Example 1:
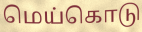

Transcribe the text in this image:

மெய்கொடு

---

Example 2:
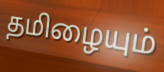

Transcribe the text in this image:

தமிழையும்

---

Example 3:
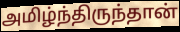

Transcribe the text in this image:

அமிழ்ந்திருந்தான்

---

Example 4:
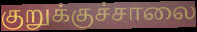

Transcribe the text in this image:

குறுக்குச்சாலை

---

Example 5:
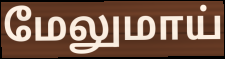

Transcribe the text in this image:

மேலுமாய்